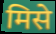
मिसे